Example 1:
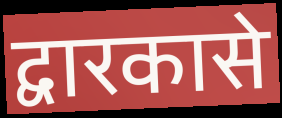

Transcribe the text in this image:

द्वारकासे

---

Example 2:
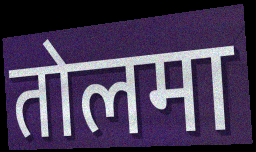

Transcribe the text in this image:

तोलमा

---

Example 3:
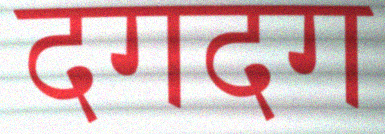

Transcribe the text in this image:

दगदग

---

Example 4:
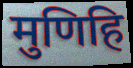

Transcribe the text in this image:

मुणिहि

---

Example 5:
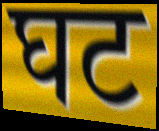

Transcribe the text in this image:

घट